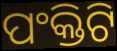
ପଂକ୍ତିଟି